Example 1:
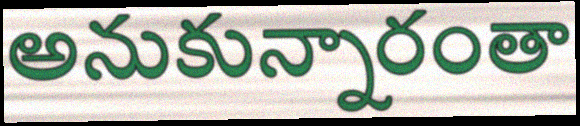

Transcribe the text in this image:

అనుకున్నారంతా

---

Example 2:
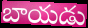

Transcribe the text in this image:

బాయడు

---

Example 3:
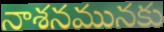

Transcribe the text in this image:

నాశనమునకు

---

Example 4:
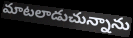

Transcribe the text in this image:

మాటలాడుచున్నాను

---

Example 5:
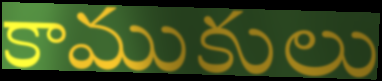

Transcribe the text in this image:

కాముకులు